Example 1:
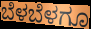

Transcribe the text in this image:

ಬೆಳಬೆಳಗೂ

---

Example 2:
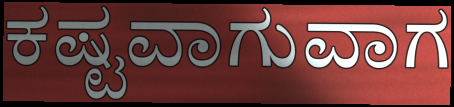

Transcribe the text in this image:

ಕಷ್ಟವಾಗುವಾಗ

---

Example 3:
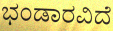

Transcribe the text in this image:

ಭಂಡಾರವಿದೆ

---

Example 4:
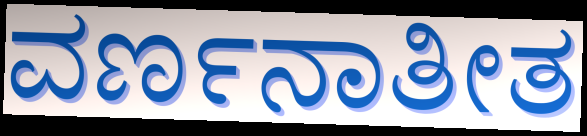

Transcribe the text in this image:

ವರ್ಣನಾತೀತ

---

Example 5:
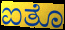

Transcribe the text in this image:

ಐತೊ